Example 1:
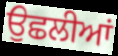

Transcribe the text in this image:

ਉਛਲੀਆਂ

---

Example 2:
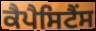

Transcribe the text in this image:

ਕੈਪੈਸਿਟੈਂਸ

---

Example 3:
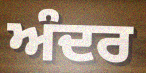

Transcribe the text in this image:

ਅੰਦਰ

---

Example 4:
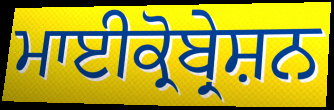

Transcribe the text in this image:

ਮਾਈਕ੍ਰੋਬ੍ਰੇਸ਼ਨ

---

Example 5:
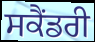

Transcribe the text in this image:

ਸਕੈੰਡਰੀ